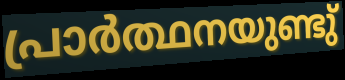
പ്രാർത്ഥനയുണ്ടു്